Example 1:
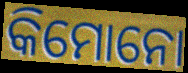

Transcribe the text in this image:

କିମୋନୋ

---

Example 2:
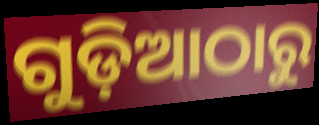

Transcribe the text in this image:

ଗୁଡ଼ିଆଠାରୁ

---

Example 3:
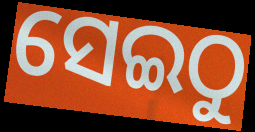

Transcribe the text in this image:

ସେଇଠୁ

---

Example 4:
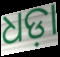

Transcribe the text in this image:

ଧଡ଼ା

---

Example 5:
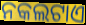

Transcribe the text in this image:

ନକଲଟାଏ